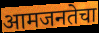
आमजनतेचा